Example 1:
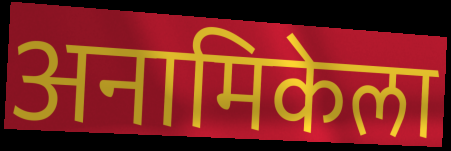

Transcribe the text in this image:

अनामिकेला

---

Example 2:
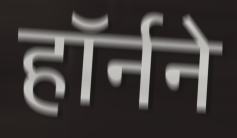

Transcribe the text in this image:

हॉर्नने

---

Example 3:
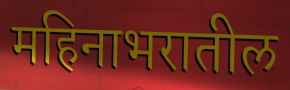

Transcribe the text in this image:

महिनाभरातील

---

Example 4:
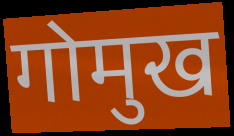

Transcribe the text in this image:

गोमुख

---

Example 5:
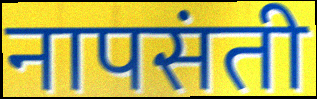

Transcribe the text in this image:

नापसंती